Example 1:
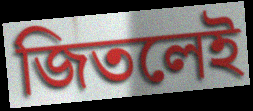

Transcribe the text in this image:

জিতলেই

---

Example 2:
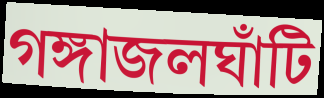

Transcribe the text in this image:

গঙ্গাজলঘাঁটি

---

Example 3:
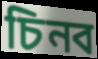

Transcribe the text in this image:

চিনব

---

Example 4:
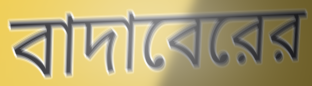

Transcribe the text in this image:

বাদাবেরের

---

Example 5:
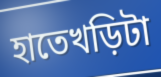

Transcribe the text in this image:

হাতেখড়িটা